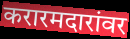
करारमदारांवर